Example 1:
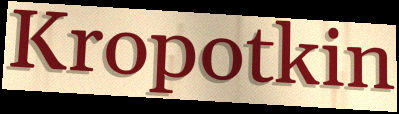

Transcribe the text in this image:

Kropotkin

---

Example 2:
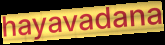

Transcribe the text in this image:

hayavadana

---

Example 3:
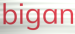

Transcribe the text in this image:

bigan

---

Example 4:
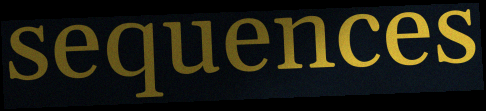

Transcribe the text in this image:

sequences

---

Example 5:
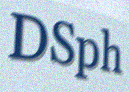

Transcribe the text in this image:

DSph